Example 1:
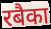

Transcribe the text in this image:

रबैका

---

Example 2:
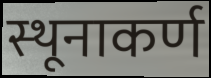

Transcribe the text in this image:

स्थूनाकर्ण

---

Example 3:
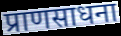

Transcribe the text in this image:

प्राणसाधना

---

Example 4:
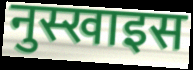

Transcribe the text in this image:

नुस्खाइस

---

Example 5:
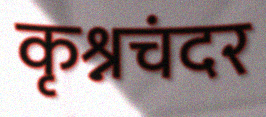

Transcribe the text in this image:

कृश्नचंदर